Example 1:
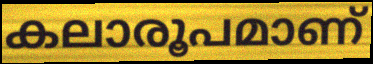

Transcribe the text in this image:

കലാരൂപമാണ്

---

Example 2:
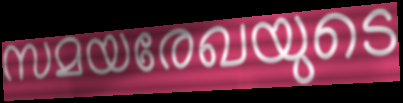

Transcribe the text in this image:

സമയരേഖയുടെ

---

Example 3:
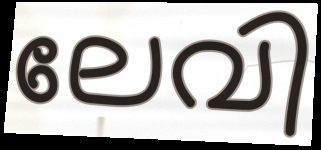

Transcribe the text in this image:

ലേവി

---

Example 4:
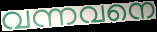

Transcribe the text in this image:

വന്നവനെ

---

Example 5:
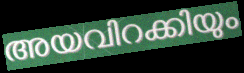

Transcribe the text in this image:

അയവിറക്കിയും